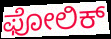
ಫೋಲಿಕ್